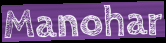
Manohar